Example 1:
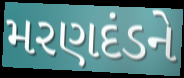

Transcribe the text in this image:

મરણદંડને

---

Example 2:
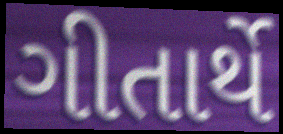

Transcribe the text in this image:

ગીતાર્થે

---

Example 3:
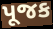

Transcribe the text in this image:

પૂજક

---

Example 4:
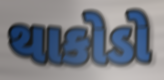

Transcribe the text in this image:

થાકોડો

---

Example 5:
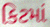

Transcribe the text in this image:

કિટમાં